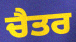
ਚੈਤਰ